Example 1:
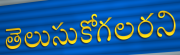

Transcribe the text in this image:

తెలుసుకోగలరని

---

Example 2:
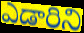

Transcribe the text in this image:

ఎడారిని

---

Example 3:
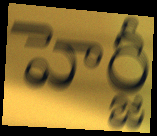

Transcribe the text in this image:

హెర్జీ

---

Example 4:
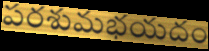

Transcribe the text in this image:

పరశుమభయదం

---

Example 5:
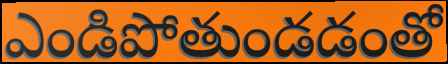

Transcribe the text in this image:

ఎండిపోతుండడంతో